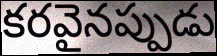
కరవైనప్పుడు